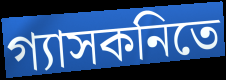
গ্যাসকনিতে